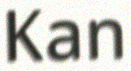
Kan